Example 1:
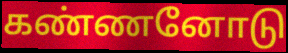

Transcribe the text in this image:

கண்ணனோடு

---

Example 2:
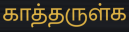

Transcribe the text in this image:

காத்தருள்க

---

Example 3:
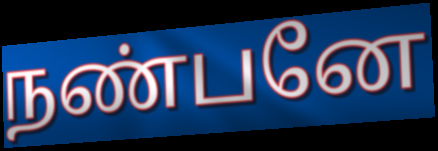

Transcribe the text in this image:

நண்பனே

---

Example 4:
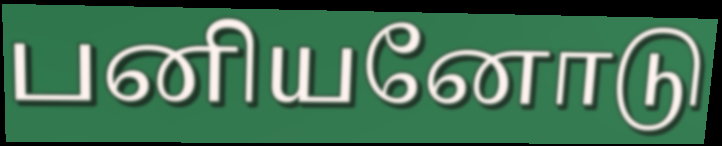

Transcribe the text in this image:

பனியனோடு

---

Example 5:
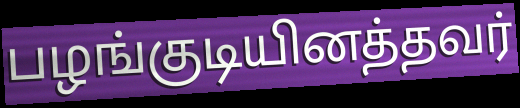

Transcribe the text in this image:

பழங்குடியினத்தவர்